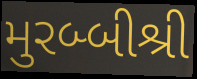
મુરબ્બીશ્રી